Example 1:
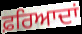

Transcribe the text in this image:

ਫ਼ਰਿਆਦਾਂ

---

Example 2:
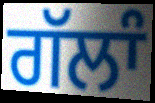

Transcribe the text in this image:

ਗੱਲਾੰ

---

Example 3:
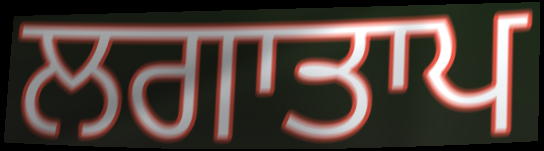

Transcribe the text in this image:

ਲਗਾਤਾਪ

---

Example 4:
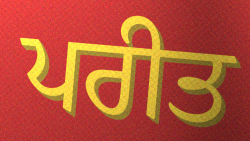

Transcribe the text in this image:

ਪਰੀਤ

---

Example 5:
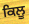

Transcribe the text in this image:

ਕਿਲੂ